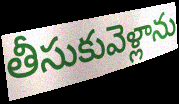
తీసుకువెళ్లాను